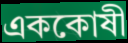
এককোষী